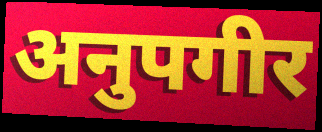
अनुपगीर